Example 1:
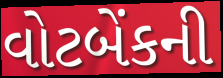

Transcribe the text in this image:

વોટબેંકની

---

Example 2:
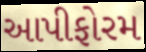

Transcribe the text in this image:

આપીફોરમ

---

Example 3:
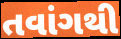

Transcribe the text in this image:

તવાંગથી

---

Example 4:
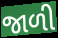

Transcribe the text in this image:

જાળી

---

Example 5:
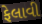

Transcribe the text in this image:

ફેલાવી